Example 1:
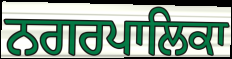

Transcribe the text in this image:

ਨਗਰਪਾਲਿਕਾ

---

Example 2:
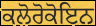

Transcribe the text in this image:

ਕਲੋਰੋਕੋਇਨ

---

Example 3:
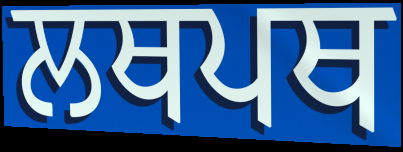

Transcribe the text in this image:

ਲਥਪਥ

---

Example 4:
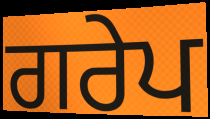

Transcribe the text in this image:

ਗਰੇਪ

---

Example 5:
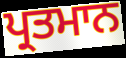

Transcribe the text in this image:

ਪ੍ਰਤਮਾਨ